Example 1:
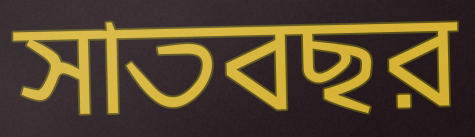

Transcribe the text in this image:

সাতবছর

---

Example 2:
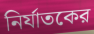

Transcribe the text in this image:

নির্যাতকের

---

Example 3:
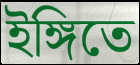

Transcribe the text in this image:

ইঙ্গিতে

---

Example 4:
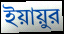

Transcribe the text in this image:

ইয়ায়ুর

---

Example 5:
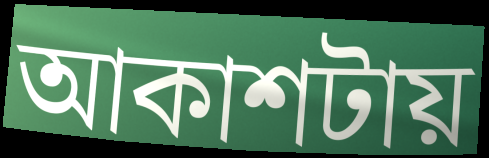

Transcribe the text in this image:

আকাশটায়